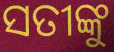
ସତୀଙ୍କୁ